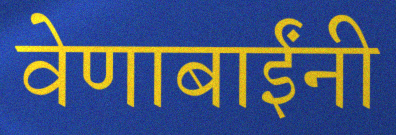
वेणाबाईंनी